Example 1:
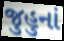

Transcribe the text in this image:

જુહુનાં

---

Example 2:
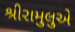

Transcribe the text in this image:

શ્રીરામુલુએ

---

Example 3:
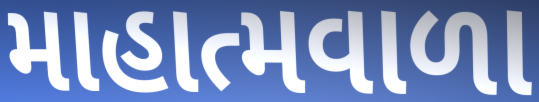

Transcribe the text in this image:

માહાત્મવાળા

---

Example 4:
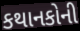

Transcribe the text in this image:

કથાનકોની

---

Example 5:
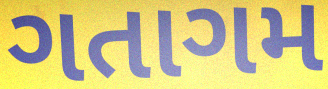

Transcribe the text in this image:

ગતાગમ